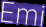
Emi